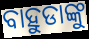
ବାହୁଡାଙ୍କୁ